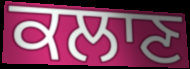
ਕਲਾਣ